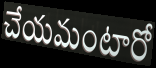
చేయమంటారో